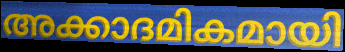
അക്കാദമികമായി